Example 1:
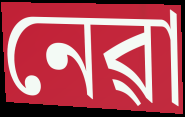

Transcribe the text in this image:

নেৱা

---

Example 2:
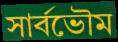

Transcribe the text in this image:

সাৰ্বভৌম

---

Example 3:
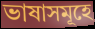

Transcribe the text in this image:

ভাষাসমূহে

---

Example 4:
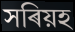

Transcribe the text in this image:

সৰিয়হ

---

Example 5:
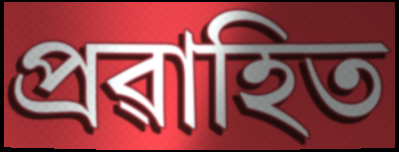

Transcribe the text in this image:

প্ৰৱাহিত